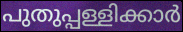
പുതുപ്പള്ളിക്കാർ